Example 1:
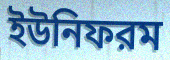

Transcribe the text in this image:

ইউনিফরম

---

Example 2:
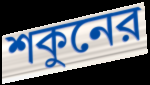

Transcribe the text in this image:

শকুনের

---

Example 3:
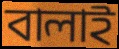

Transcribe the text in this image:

বালাই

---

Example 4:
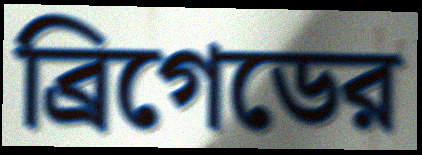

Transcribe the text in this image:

ব্রিগেডের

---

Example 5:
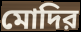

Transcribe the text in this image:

মোদির